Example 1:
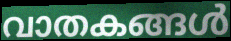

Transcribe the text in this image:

വാതകങ്ങൾ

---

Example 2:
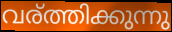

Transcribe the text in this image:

വര്ത്തിക്കുന്നു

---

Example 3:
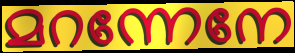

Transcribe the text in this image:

മറന്നേനേ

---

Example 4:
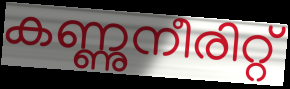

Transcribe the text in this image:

കണ്ണുനീരിറ്റ്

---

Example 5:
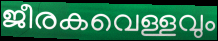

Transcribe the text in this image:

ജീരകവെള്ളവും